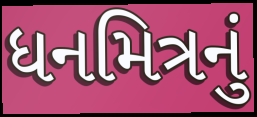
ધનમિત્રનું